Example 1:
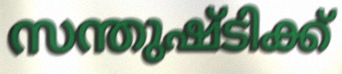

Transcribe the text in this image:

സന്തുഷ്ടിക്ക്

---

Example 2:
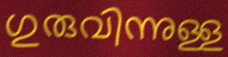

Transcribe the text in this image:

ഗുരുവിന്നുള്ള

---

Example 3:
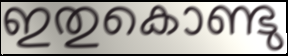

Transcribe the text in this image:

ഇതുകൊണ്ടു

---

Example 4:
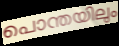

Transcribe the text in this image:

പൊന്തയിലും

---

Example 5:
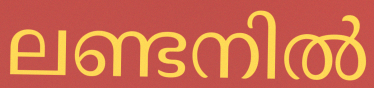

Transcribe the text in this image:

ലണ്ടനിൽ